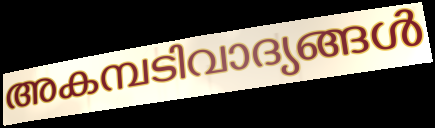
അകമ്പടിവാദ്യങ്ങൾ